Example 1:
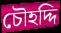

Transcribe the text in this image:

চৌহদ্দি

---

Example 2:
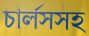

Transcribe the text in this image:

চার্লসসহ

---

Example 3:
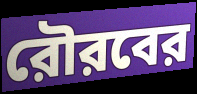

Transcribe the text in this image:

রৌরবের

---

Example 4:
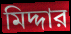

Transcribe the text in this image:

মিদ্দার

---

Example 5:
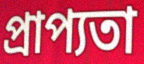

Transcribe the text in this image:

প্রাপ্যতা